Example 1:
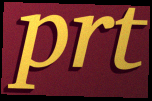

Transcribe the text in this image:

prt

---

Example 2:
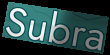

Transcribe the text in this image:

Subra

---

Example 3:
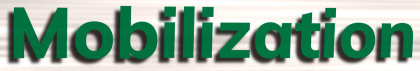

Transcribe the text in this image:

Mobilization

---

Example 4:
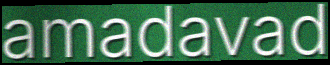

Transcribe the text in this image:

amadavad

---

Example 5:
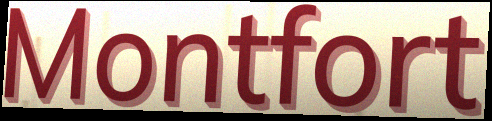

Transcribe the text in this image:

Montfort